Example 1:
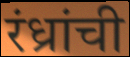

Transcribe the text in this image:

रंध्रांची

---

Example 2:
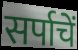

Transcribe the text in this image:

सर्पाचें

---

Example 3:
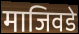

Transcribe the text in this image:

माजिवडे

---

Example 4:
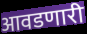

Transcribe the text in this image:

आवडणारी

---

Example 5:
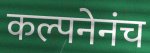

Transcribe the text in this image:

कल्पनेनंच